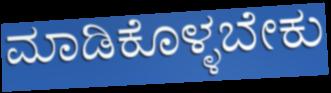
ಮಾಡಿಕೊಳ್ಳಬೇಕು